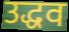
उद्धव